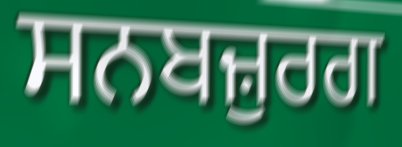
ਸਨਬਜ਼ੁਰਗ